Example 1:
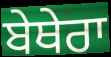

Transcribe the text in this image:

ਬੇਥੇਰਾ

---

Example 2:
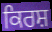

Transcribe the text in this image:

ਕਿਰਸ਼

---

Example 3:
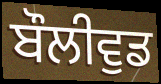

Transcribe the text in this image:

ਬੌਲੀਵੁਡ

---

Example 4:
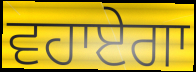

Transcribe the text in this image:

ਵਹਾਏਗਾ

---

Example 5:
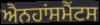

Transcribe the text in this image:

ਐਨਹਾਂਸਮੈਂਟਸ